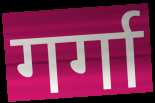
गर्गा